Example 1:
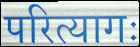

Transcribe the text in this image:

परित्यागः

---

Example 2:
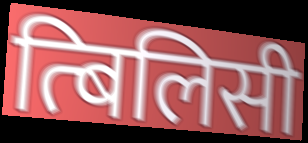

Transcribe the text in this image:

त्बिलिसी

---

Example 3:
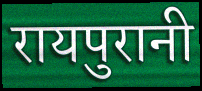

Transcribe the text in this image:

रायपुरानी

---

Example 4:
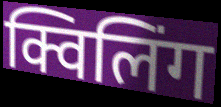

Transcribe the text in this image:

क्विलिंग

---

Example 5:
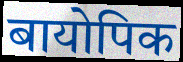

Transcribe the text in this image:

बायोपिक